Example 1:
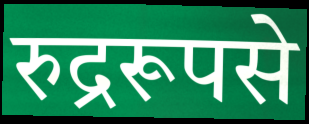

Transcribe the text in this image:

रुद्ररूपसे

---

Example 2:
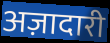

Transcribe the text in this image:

अज़ादारी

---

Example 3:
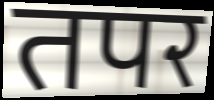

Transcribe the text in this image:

तपर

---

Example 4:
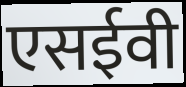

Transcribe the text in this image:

एसईवी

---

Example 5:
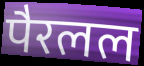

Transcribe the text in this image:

पैरलल